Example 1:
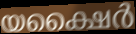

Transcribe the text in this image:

യക്ഷൈർ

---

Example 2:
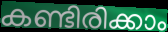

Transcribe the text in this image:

കണ്ടിരിക്കാം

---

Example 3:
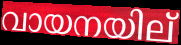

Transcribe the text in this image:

വായനയില്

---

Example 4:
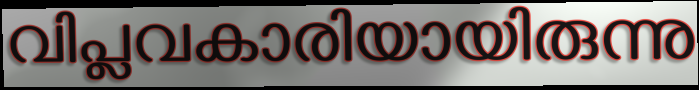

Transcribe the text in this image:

വിപ്ലവകാരിയായിരുന്നു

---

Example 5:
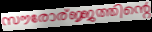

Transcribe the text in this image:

സൗരോര്ജ്ജത്തിന്റെ